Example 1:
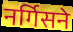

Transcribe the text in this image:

नर्गिसने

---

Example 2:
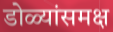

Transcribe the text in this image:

डोळ्यांसमक्ष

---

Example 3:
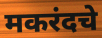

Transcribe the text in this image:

मकरंदचे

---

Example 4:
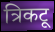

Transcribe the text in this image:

त्रिकटू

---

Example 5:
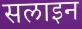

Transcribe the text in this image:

सलाइन